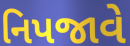
નિપજાવે